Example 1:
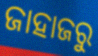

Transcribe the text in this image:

ଜାହାଜରୁ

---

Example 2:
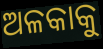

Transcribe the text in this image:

ଅଳକାକୁ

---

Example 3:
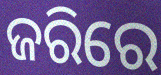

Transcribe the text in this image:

ଜରିରେ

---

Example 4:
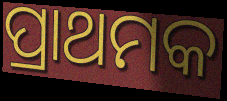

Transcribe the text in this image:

ପ୍ରାଥମକ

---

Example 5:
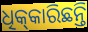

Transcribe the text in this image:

ଧିକ୍‌କାରିଛନ୍ତି